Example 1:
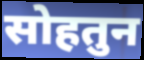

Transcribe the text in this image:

सोहतुन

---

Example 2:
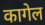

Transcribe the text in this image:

कागेल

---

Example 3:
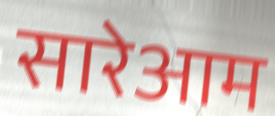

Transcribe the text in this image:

सारेआम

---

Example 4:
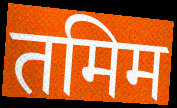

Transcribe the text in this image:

तमिम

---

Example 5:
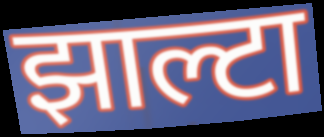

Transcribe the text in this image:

झाल्टा